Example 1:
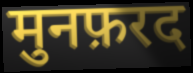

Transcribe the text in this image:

मुनफ़रद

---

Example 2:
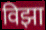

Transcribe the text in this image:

विझा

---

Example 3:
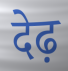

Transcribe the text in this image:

देढ़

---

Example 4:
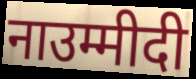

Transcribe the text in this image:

नाउम्मीदी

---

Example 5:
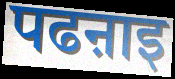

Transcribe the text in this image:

पढऩाइ